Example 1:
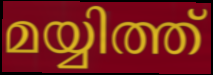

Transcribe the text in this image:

മയ്യിത്ത്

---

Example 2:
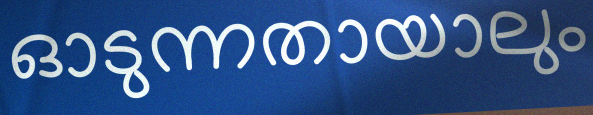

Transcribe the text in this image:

ഓടുന്നതായാലും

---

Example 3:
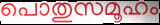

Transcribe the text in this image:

പൊതുസമൂഹം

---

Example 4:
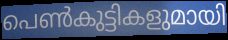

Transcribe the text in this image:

പെൺകുട്ടികളുമായി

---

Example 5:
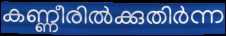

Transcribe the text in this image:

കണ്ണീരിൽക്കുതിർന്ന